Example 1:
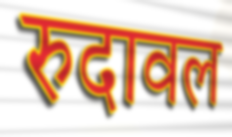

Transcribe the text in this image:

रुदावल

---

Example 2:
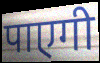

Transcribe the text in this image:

पाएगी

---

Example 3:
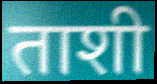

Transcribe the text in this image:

ताशी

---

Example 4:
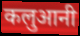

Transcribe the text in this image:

कलुआनी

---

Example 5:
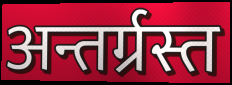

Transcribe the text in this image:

अन्तर्ग्रस्त